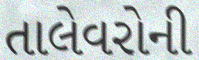
તાલેવરોની